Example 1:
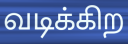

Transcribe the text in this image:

வடிக்கிற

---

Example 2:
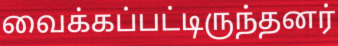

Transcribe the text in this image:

வைக்கப்பட்டிருந்தனர்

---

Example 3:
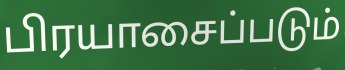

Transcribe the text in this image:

பிரயாசைப்படும்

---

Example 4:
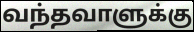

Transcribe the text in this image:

வந்தவாளுக்கு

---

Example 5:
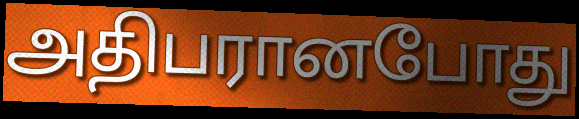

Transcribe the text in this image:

அதிபரானபோது